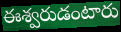
ఈశ్వరుడంటారు